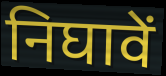
निघावें